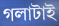
গলাটাই